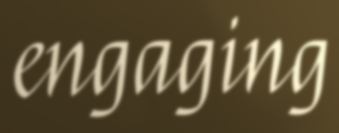
engaging